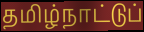
தமிழ்நாட்டுப்